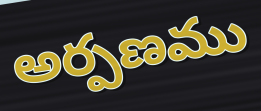
అర్పణము